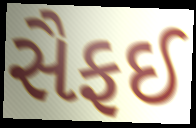
સૈફઈ